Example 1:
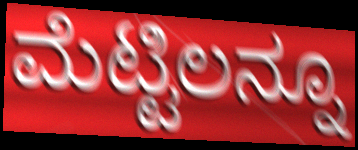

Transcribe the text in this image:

ಮೆಟ್ಟಿಲನ್ನೂ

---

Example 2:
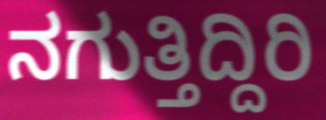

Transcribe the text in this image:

ನಗುತ್ತಿದ್ದಿರಿ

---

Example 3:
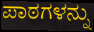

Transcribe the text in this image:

ಪಾಠಗಳನ್ನು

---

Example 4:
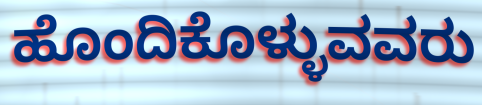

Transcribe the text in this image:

ಹೊಂದಿಕೊಳ್ಳುವವರು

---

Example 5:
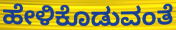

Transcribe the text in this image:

ಹೇಳಿಕೊಡುವಂತೆ